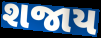
શજાય